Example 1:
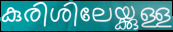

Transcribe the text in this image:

കുരിശിലേയ്ക്കുള്ള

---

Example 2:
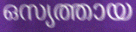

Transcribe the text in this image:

ഒസ്യത്തായ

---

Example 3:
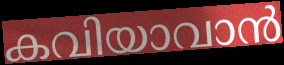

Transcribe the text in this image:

കവിയാവാൻ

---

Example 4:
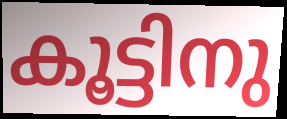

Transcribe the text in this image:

കൂട്ടിനു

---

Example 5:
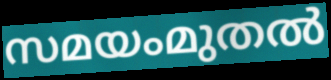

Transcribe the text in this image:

സമയംമുതൽ